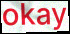
okay